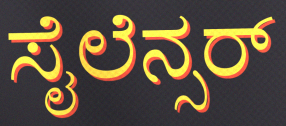
ಸೈಲೆನ್ಸರ್